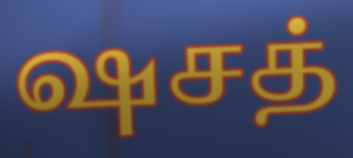
ஷசத்